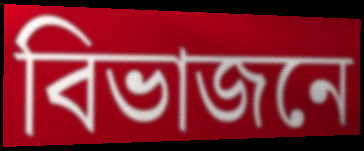
বিভাজনে